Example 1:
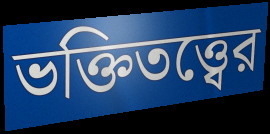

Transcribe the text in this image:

ভক্তিতত্ত্বের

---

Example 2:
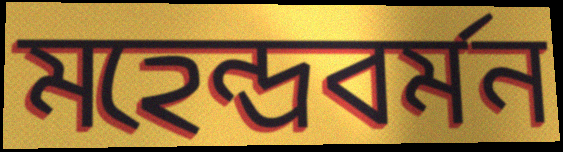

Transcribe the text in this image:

মহেন্দ্রবর্মন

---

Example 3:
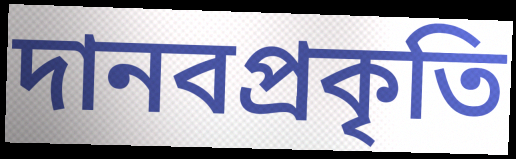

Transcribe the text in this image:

দানবপ্রকৃতি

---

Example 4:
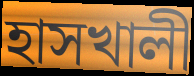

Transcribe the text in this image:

হাসখালী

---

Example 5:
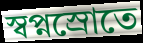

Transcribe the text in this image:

স্বপ্নস্রোতে